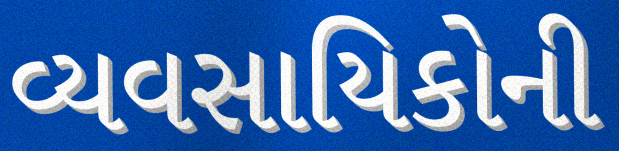
વ્યવસાયિકોની